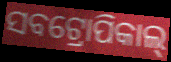
ସବଟ୍ରୋପିକାଲ୍